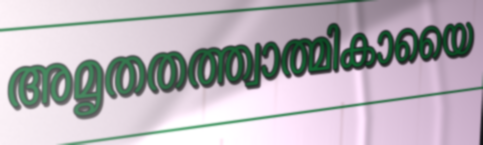
അമൃതതത്ത്വാത്മികായൈ